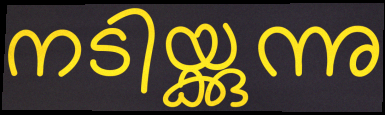
നടിയ്ക്കുന്നു